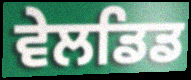
ਵੇਲਡਿਡ